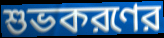
শুভকরণের